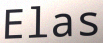
Elas